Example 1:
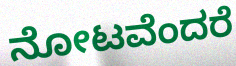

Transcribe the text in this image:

ನೋಟವೆಂದರೆ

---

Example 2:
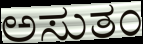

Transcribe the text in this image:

ಅಸುತಂ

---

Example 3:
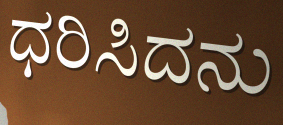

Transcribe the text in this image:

ಧರಿಸಿದನು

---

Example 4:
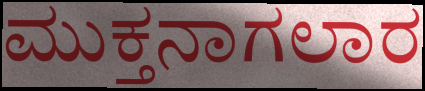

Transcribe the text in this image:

ಮುಕ್ತನಾಗಲಾರ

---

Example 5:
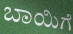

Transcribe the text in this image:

ಬಾಯಿಗೆ